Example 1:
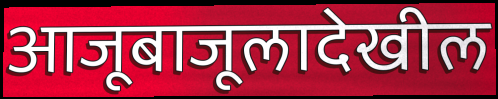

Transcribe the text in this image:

आजूबाजूलादेखील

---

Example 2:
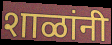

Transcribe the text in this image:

शाळांनी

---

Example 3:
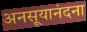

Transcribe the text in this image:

अनसूयानंदना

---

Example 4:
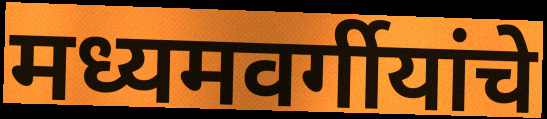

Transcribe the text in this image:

मध्यमवर्गीयांचे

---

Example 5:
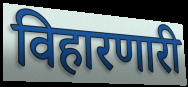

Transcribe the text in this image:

विहारणारी